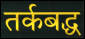
तर्कबद्ध